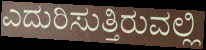
ಎದುರಿಸುತ್ತಿರುವಲ್ಲಿ